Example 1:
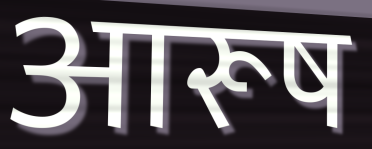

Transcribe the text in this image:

आरूष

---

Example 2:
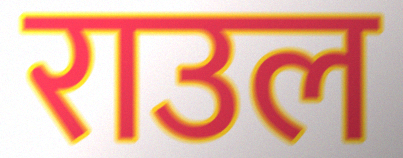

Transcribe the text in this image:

राउल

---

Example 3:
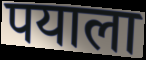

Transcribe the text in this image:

पयाला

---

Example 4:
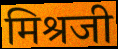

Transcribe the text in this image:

मिश्रजी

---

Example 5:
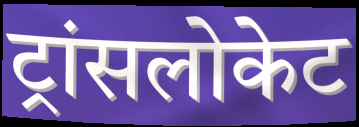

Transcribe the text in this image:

ट्रांसलोकेट